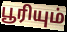
பூரியும்